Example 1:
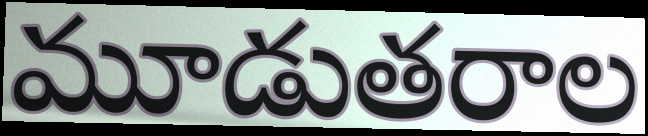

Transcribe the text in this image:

మూడుతరాల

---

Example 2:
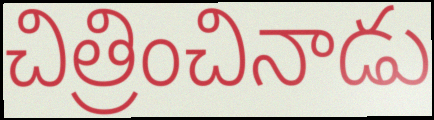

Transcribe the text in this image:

చిత్రించినాడు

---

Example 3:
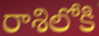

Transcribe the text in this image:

రాశిలోకి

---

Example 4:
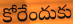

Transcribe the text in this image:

కోరేందుకు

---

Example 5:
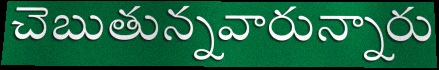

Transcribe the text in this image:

చెబుతున్నవారున్నారు